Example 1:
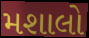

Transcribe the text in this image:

મશાલો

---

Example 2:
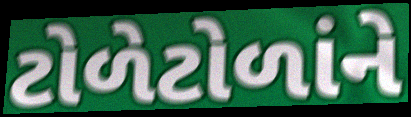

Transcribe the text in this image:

ટોળેટોળાંને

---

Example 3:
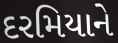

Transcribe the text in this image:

દરમિયાને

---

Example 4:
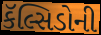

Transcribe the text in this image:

કૅલ્સિડોની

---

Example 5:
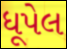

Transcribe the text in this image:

ધૂપેલ